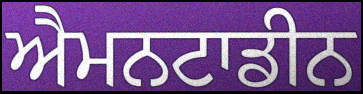
ਐਮਨਟਾਡੀਨ